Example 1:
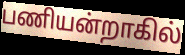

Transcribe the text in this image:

பணியன்றாகில்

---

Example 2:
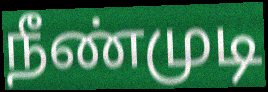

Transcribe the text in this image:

நீண்முடி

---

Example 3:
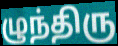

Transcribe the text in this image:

ழுந்திரு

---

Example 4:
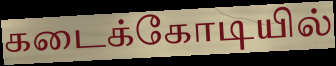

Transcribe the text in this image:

கடைக்கோடியில்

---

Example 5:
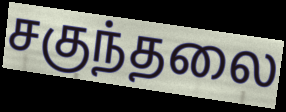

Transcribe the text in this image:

சகுந்தலை